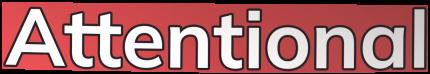
Attentional